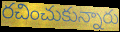
రచించుకున్నారు